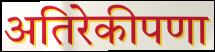
अतिरेकीपणा